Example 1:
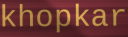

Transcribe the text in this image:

khopkar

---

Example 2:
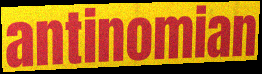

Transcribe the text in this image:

antinomian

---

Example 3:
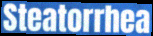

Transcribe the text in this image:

Steatorrhea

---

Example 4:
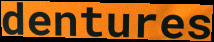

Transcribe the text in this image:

dentures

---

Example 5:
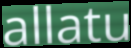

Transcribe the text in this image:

allatu